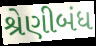
શ્રેણીબંધ